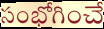
సంభోగించే